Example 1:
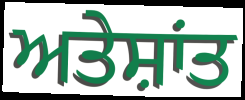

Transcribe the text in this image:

ਅਤੇਸ਼ਾਂਤ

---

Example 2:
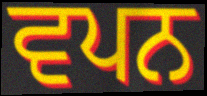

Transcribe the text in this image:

ਵਪਨ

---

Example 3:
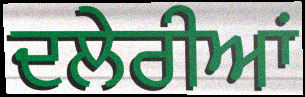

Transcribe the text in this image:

ਦਲੇਰੀਆਂ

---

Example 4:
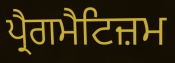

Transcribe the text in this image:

ਪ੍ਰੈਗਮੈਟਿਜ਼ਮ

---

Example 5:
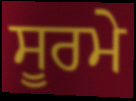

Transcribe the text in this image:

ਸੂਰਮੇ